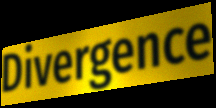
Divergence